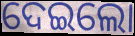
ଦେଇଲୋ